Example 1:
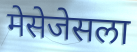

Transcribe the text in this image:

मेसेजेसला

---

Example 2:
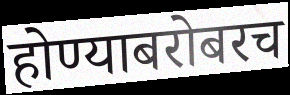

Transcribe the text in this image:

होण्याबरोबरच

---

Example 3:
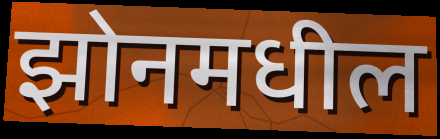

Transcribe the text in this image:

झोनमधील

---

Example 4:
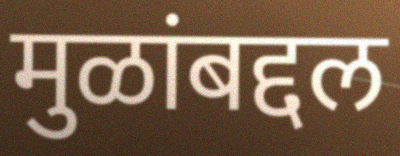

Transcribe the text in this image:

मुळांबद्दल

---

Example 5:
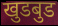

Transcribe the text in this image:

खुडबुड